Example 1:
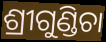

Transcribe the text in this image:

ଶ୍ରୀଗୁଣ୍ଡିଚା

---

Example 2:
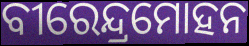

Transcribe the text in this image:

ବୀରେନ୍ଦ୍ରମୋହନ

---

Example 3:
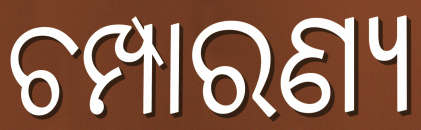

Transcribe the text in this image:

ଚମ୍ପାରଣ୍ୟ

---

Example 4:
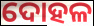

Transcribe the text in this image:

ଦୋହଳ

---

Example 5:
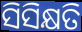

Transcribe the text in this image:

ସିସିକ୍ଷତି